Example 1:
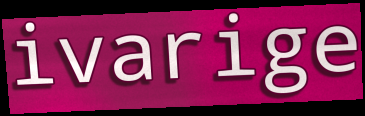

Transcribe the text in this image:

ivarige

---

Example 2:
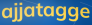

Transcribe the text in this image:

ajjatagge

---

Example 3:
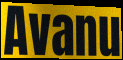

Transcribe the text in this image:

Avanu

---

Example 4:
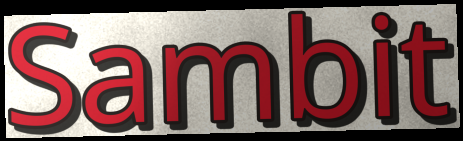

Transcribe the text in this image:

Sambit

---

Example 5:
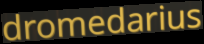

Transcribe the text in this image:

dromedarius